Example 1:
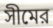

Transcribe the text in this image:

সীমের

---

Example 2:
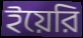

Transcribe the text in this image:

ইয়েরি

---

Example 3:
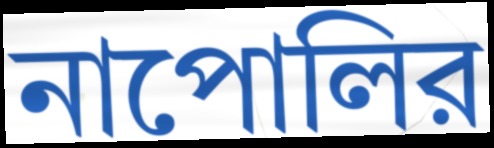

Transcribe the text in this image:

নাপোলির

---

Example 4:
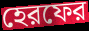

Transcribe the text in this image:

হেরফের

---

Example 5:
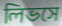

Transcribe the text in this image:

লিভসে